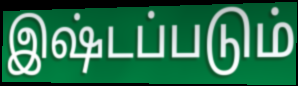
இஷ்டப்படும்